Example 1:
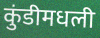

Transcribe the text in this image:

कुंडीमधली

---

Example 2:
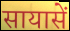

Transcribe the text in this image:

सायासें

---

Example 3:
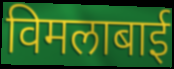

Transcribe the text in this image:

विमलाबाई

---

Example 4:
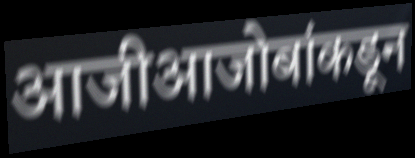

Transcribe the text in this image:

आजीआजोबांकडून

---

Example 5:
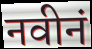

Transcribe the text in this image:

नवीनं